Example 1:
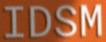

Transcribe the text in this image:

IDSM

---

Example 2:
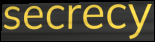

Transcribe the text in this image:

secrecy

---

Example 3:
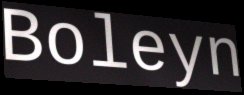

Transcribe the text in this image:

Boleyn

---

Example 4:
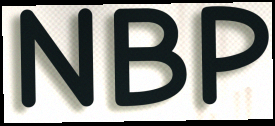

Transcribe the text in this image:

NBP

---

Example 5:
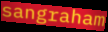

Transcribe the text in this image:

sangraham